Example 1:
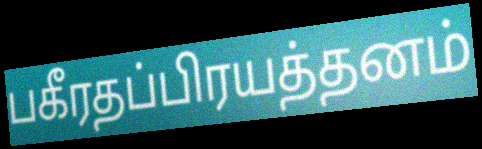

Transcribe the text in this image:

பகீரதப்பிரயத்தனம்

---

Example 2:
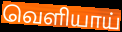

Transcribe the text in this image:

வெளியாய்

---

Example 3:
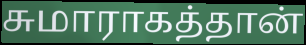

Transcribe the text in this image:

சுமாராகத்தான்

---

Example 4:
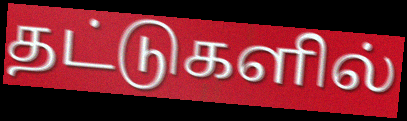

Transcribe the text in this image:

தட்டுகளில்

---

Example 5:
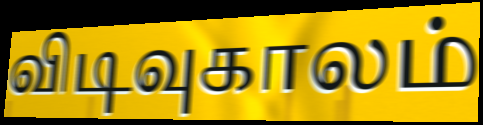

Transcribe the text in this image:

விடிவுகாலம்